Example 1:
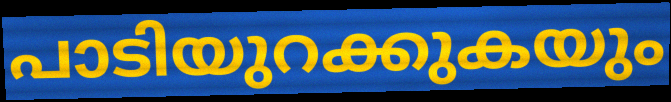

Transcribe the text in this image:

പാടിയുറക്കുകയും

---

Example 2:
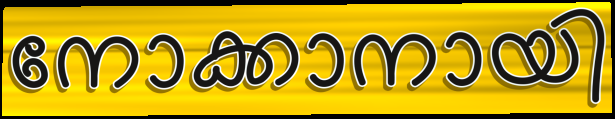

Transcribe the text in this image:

നോക്കാനായി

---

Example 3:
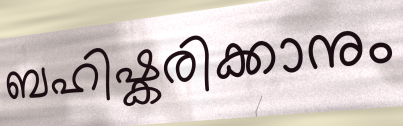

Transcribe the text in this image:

ബഹിഷ്കരിക്കാനും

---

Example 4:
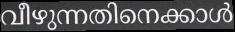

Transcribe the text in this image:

വീഴുന്നതിനെക്കാൾ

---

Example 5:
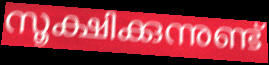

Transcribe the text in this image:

സൂക്ഷിക്കുന്നുണ്ട്